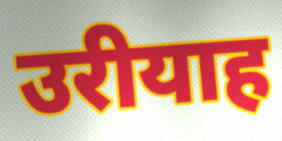
उरीयाह